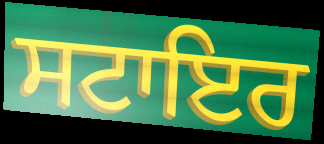
ਸਟਾਇਰ